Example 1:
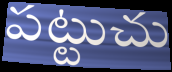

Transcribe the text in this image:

పట్టుచు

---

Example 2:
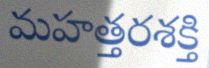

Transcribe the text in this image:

మహత్తరశక్తి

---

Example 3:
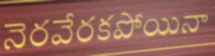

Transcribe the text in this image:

నెరవేరకపోయినా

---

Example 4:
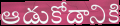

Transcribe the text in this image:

ఆడుకోడానికి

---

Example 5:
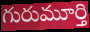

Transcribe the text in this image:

గురుమూర్తి